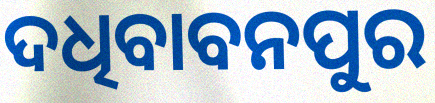
ଦଧିବାବନପୁର